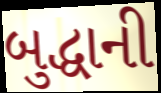
બુદ્ધાની